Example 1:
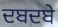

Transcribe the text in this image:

ਦਬਦਬੇ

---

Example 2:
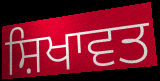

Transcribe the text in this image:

ਸ਼ਿਖਾਵਤ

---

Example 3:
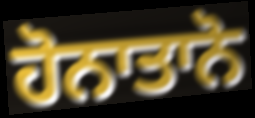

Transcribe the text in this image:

ਹੋਨਾਤਾਨੋ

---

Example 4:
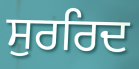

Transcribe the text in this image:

ਸੁਰਰਿਦ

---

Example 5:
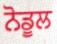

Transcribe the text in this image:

ਨੋਡੂਲ